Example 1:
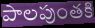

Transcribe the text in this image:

పాలపుంతకి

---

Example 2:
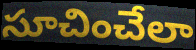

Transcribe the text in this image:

సూచించేలా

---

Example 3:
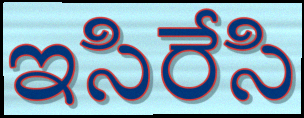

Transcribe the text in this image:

ఇసిరేసి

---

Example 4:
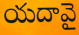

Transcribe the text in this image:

యదావై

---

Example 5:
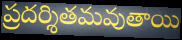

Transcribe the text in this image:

ప్రదర్శితమవుతాయి